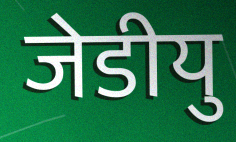
जेडीयु